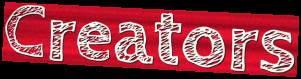
Creators